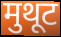
मुथूट